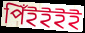
পিঁইইইই